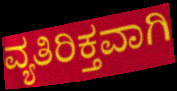
ವ್ಯತಿರಿಕ್ತವಾಗಿ